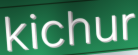
kichur